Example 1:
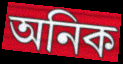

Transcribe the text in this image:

অনিক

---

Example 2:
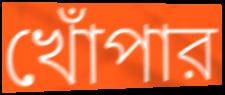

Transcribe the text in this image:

খোঁপার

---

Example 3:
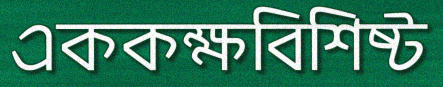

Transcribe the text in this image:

এককক্ষবিশিষ্ট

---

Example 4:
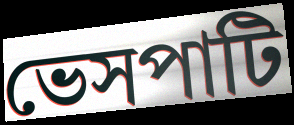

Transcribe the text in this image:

ভেসপাটি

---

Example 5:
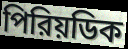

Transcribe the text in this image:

পিরিয়ডিক